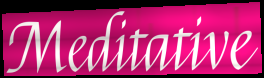
Meditative